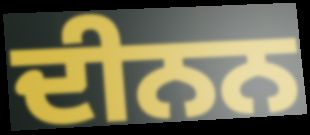
ਦੀਨਨ